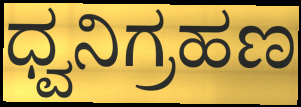
ಧ್ವನಿಗ್ರಹಣ